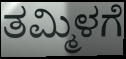
ತಮ್ಮಿಳಗೆ